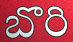
బొరి